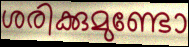
ശരിക്കുമുണ്ടോ